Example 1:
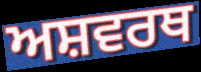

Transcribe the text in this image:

ਅਸ਼ਵਰਥ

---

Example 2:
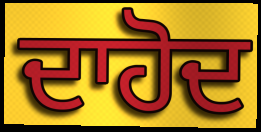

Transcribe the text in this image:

ਦਾਹੋਦ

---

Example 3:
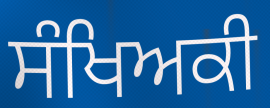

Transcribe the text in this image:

ਸੰਖਿਅਕੀ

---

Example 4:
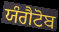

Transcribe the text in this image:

ਯੰਗੈਟੋਬ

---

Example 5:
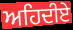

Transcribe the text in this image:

ਅਹਿਦੀਏ